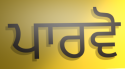
ਪਾਰਵੋ